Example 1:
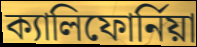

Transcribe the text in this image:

ক্যালিফোর্নিয়া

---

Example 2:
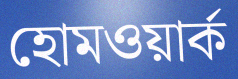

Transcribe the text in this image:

হোমওয়ার্ক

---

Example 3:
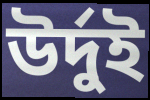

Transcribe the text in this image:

উর্দুই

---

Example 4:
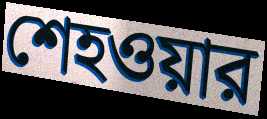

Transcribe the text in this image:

শেহওয়ার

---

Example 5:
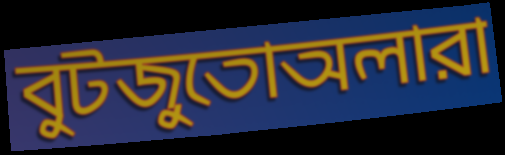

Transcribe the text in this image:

বুটজুতোঅলারা